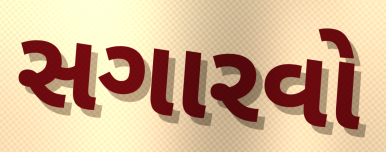
સગારવો